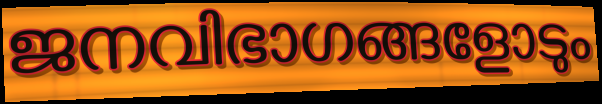
ജനവിഭാഗങ്ങളോടും